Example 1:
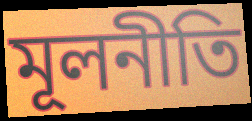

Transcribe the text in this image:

মূলনীতি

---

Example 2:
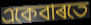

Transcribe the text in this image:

একেবাৰতে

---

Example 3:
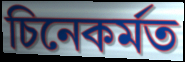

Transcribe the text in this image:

চিনেকৰ্মত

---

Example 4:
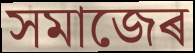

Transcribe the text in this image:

সমাজেৰ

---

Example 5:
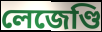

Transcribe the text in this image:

লেজেণ্ডি